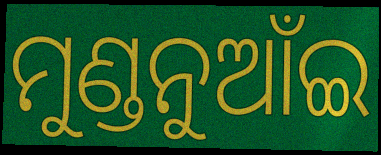
ମୁଣ୍ଡନୁଆଁଇ